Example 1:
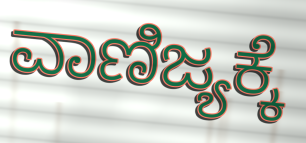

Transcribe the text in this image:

ವಾಣಿಜ್ಯಕ್ಕೆ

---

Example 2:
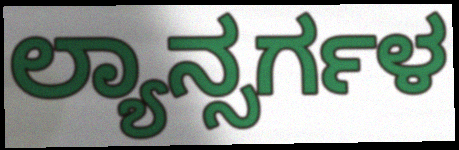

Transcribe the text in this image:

ಲ್ಯಾನ್ಸರ್ಗಳ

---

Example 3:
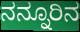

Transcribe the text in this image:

ನನ್ನೂರಿನ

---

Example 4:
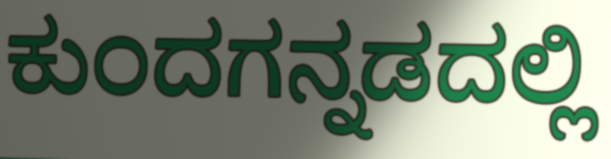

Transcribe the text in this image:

ಕುಂದಗನ್ನಡದಲ್ಲಿ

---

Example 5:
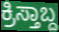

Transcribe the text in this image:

ಕ್ರಿಸ್ತಾಬ್ದ